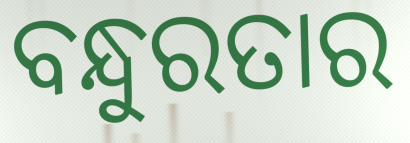
ବନ୍ଧୁରତାର